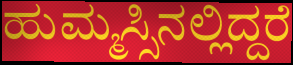
ಹುಮ್ಮಸ್ಸಿನಲ್ಲಿದ್ದರೆ